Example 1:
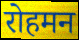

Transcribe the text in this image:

रोहमन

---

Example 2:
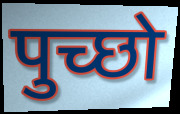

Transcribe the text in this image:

पुच्छो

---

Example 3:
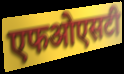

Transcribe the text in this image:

एफओएसटी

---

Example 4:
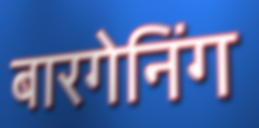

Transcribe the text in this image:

बारगेनिंग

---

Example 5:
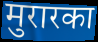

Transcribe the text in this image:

मुरारका